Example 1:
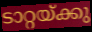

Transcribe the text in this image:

ടാറ്റയ്ക്കു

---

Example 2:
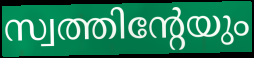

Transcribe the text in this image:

സ്വത്തിന്റേയും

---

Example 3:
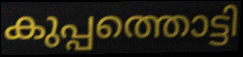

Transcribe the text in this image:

കുപ്പത്തൊട്ടി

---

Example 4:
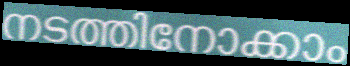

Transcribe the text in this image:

നടത്തിനോക്കാം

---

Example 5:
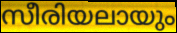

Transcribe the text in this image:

സീരിയലായും